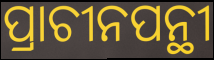
ପ୍ରାଚୀନପନ୍ଥୀ